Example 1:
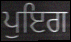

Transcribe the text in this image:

ਪੁਇਗ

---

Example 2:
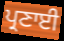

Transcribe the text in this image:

ਪ੍ਰਣਾਈ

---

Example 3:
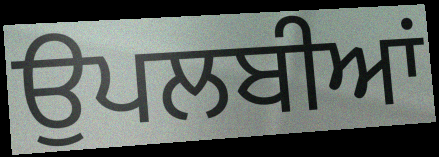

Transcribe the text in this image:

ਉਪਲਬੀਆਂ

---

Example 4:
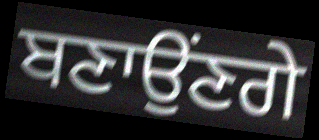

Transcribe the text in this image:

ਬਣਾਉਂਣਗੇ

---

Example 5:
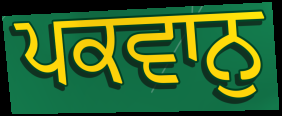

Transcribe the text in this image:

ਪਕਵਾਨੁ